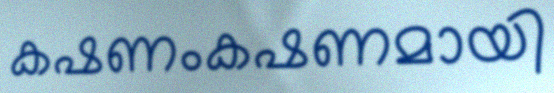
കഷണംകഷണമായി